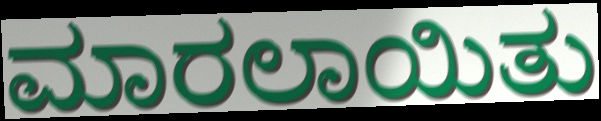
ಮಾರಲಾಯಿತು